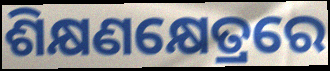
ଶିକ୍ଷଣକ୍ଷେତ୍ରରେ